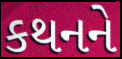
કથનને